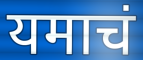
यमाचं